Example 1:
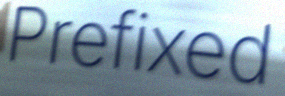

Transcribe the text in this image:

Prefixed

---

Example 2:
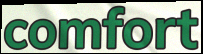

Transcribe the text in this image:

comfort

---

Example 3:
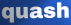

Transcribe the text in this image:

quash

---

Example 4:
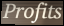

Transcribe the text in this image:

Profits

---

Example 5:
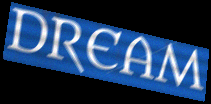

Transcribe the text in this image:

DREAM